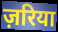
ज़रिया